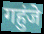
गहुंजे